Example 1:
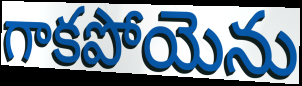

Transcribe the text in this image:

గాకపోయెను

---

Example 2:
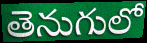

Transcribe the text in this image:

తెనుగులో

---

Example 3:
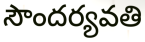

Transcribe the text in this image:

సౌందర్యవతి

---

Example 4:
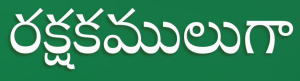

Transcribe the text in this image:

రక్షకములుగా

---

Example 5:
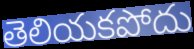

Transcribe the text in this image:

తెలియకపోదు